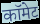
कॉमेट